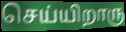
செய்யிறாரு